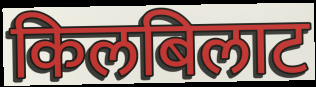
किलबिलाट